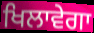
ਖਿਲਾਵੇਗਾ